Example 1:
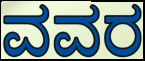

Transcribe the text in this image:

ವವರ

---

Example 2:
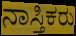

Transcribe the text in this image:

ನಾಸ್ತಿಕರು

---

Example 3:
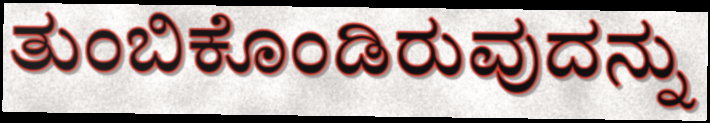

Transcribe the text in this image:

ತುಂಬಿಕೊಂಡಿರುವುದನ್ನು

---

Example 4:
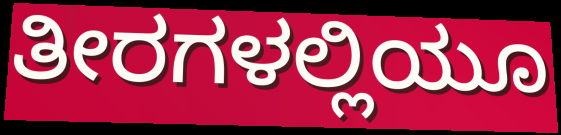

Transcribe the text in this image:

ತೀರಗಳಲ್ಲಿಯೂ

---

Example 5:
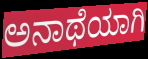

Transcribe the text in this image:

ಅನಾಥೆಯಾಗಿ